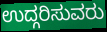
ಉದ್ಗರಿಸುವರು